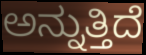
ಅನ್ನುತ್ತಿದೆ